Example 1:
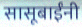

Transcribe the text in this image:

सासूबाईंनी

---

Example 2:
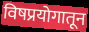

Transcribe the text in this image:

विषप्रयोगातून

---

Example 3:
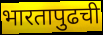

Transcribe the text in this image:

भारतापुढची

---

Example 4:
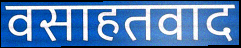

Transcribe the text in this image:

वसाहतवाद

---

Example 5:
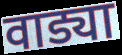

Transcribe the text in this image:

वाड्या